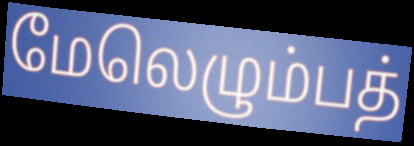
மேலெழும்பத்